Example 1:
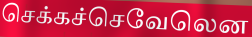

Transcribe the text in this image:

செக்கச்செவேலென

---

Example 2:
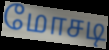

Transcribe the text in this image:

மோசடி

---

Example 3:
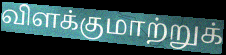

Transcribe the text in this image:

விளக்குமாற்றுக்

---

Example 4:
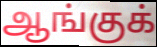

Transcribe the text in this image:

ஆங்குக்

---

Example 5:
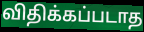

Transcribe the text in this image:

விதிக்கப்படாத